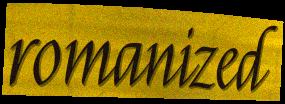
romanized